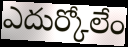
ఎదుర్కోలేం